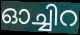
ഓച്ചിറ